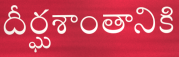
దీర్ఘశాంతానికి